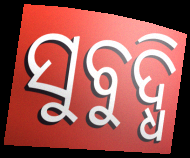
ସୁବୁଦ୍ଧି